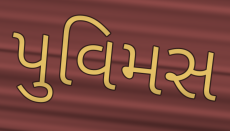
પુવિમસ